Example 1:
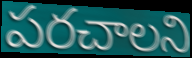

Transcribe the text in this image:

పరచాలని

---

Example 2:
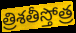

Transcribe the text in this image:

త్రిశతీస్తోత్ర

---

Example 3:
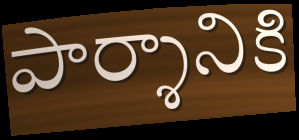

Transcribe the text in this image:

పార్శానికి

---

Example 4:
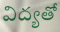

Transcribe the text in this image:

విద్యతో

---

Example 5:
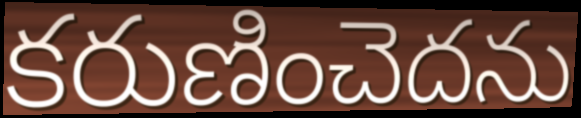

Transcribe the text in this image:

కరుణించెదను